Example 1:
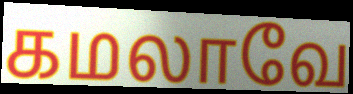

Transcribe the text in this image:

கமலாவே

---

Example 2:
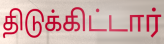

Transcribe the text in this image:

திடுக்கிட்டார்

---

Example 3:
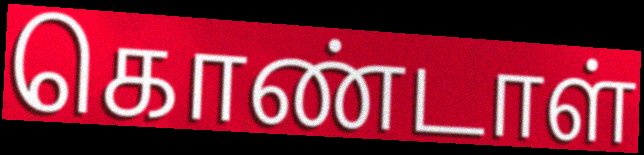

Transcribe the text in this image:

கொண்டாள்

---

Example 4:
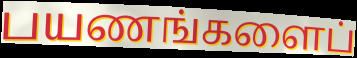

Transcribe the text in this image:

பயணங்களைப்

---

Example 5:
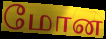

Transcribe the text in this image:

மோன